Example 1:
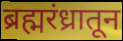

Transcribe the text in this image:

ब्रह्मरंध्रातून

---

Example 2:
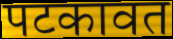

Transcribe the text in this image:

पटकावत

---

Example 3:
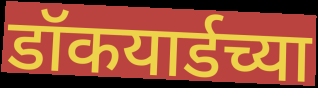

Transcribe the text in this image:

डॉकयार्डच्या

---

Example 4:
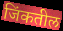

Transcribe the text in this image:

जिंकतील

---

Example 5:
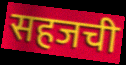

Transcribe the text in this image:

सहजची